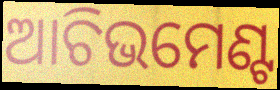
ଆଚିଭମେଣ୍ଟ